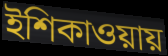
ইশিকাওয়ায়